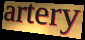
artery